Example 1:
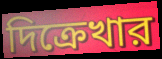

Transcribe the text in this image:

দিক্রেখার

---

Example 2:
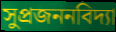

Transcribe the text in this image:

সুপ্রজননবিদ্যা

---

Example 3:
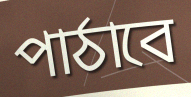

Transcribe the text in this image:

পাঠাবে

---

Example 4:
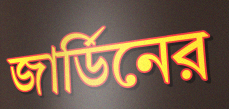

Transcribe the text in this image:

জার্ডিনের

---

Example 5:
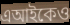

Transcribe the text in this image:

এআইকেও